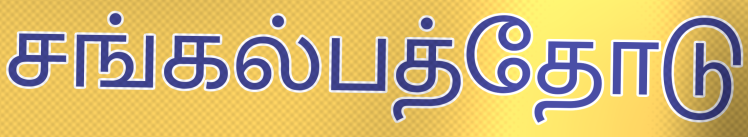
சங்கல்பத்தோடு